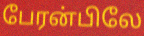
பேரன்பிலே